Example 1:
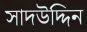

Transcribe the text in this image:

সাদউদ্দিন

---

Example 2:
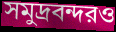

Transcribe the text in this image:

সমুদ্রবন্দরও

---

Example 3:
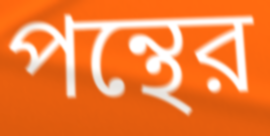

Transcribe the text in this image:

পন্থের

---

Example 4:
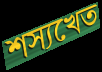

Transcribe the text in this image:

শস্যখেত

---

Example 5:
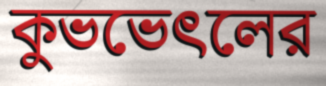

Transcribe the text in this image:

কুভভেৎলের